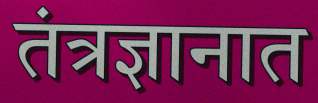
तंत्रज्ञानात